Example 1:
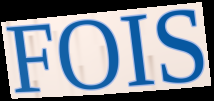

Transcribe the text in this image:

FOIS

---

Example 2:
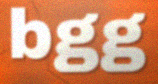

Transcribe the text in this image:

bgg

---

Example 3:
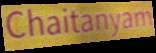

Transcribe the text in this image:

Chaitanyam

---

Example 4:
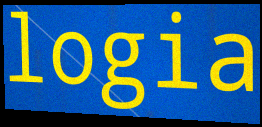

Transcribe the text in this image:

logia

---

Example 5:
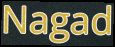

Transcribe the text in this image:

Nagad